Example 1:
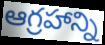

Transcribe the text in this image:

ఆగ్రహాన్ని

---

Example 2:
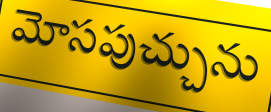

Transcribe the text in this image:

మోసపుచ్చును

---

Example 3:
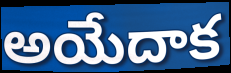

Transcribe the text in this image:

అయేదాక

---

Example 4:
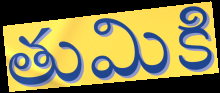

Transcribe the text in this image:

తుమికి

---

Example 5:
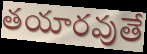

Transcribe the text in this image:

తయారవుతే